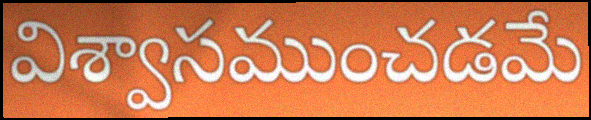
విశ్వాసముంచడమే